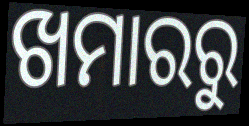
ଖମାରରୁ